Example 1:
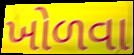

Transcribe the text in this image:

ખોળવા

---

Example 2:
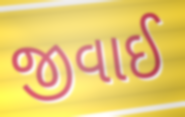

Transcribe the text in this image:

જીવાઈ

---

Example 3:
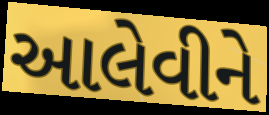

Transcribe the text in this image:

આલેવીને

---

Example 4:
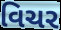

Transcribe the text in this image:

વિચર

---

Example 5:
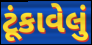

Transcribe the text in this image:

ટૂંકાવેલું